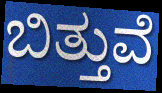
ಬಿತ್ತುವೆ